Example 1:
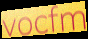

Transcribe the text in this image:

vocfm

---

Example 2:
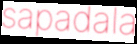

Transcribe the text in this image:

sapadala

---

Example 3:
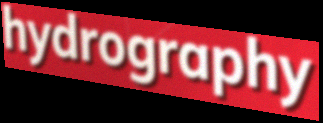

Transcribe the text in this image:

hydrography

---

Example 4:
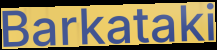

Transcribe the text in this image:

Barkataki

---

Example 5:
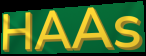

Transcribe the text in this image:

HAAs